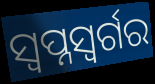
ସ୍ୱପ୍ନସ୍ୱର୍ଗର